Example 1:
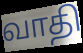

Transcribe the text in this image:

வாதி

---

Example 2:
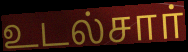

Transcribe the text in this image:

உடல்சார்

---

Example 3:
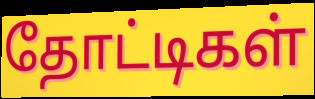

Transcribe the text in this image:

தோட்டிகள்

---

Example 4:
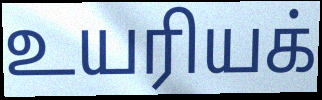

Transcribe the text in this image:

உயரியக்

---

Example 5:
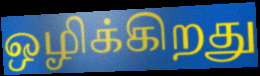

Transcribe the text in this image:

ஒழிக்கிறது